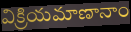
విక్రియమాణానాం